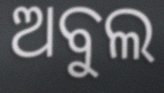
ଅବୁଲ